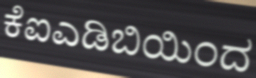
ಕೆಐಎಡಿಬಿಯಿಂದ